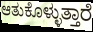
ಆತುಕೊಳ್ಳುತ್ತಾರೆ